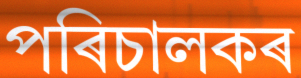
পৰিচালকৰ